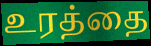
உரத்தை